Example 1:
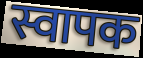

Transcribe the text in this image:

स्‍वापक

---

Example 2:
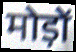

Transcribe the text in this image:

मोड़ों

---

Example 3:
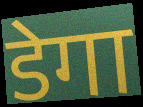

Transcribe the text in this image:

डेगा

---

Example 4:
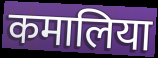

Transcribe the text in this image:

कमालिया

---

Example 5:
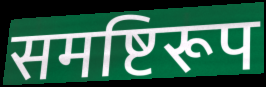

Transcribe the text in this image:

समष्टिरूप